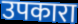
उपकारा